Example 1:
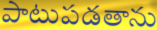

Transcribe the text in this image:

పాటుపడతాను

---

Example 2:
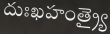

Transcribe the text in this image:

దుఃఖహంత్ర్యై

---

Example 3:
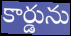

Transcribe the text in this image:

కార్డును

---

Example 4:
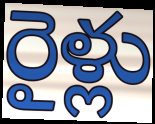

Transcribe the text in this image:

రైళ్లు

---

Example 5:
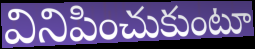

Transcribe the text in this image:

వినిపించుకుంటూ